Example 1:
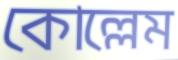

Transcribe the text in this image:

কোল্লেম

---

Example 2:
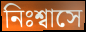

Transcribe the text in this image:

নিঃশ্বাসে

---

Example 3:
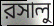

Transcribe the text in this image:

রসালু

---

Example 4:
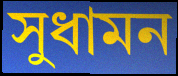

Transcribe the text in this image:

সুধামন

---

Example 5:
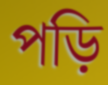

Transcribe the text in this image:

পড়ি